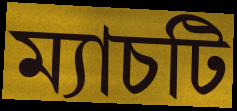
ম্যাচটি